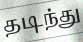
தடிந்து